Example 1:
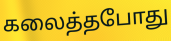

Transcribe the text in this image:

கலைத்தபோது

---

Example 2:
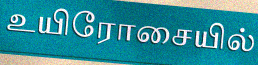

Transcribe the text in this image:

உயிரோசையில்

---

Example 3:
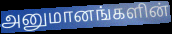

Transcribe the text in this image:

அனுமானங்களின்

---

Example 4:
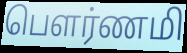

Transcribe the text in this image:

பௌர்ணமி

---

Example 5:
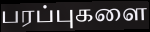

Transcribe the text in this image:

பரப்புகளை